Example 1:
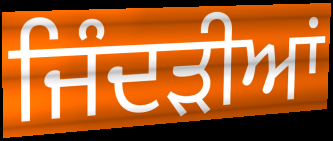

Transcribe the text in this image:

ਜਿੰਦੜੀਆਂ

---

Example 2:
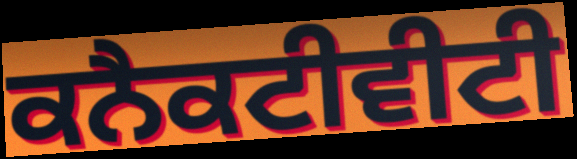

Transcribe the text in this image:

ਕਨੈਕਟੀਵੀਟੀ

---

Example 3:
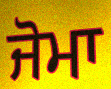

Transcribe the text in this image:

ਜੋਮਾ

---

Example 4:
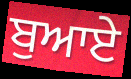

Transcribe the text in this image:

ਬੁਆਏ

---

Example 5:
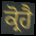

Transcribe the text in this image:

ਕ੍ਰੋਹੈ